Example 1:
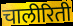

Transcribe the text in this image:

चालीरिती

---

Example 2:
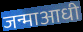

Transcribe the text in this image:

जन्माआधी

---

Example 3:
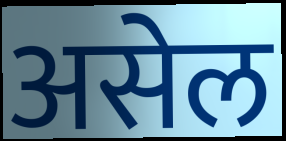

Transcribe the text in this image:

असेल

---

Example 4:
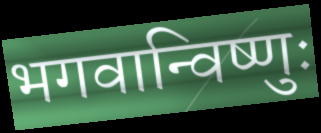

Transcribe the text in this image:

भगवान्विष्णुः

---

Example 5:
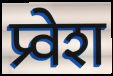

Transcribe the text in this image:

प्र्वेश